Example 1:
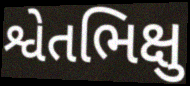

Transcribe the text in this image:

શ્વેતભિક્ષુ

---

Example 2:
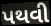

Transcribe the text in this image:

પથવી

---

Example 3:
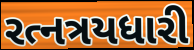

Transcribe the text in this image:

રત્નત્રયધારી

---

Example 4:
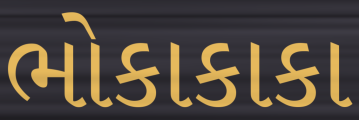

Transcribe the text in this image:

ભોકાકાકા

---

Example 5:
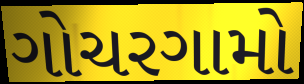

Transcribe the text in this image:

ગોચરગામો